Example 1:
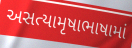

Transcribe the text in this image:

અસત્યામૃષાભાષામાં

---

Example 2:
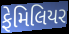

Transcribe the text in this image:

ફેમિલિયર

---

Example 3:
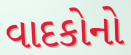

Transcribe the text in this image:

વાદકોનો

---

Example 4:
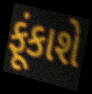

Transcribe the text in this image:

ફૂંકાશે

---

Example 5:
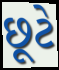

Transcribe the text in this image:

છૂટે